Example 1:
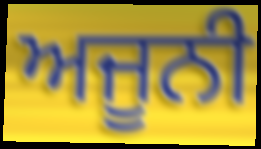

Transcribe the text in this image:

ਅਜੂਨੀ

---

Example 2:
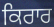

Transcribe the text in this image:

ਕਿਰਾਰ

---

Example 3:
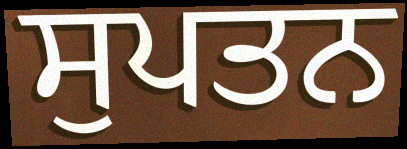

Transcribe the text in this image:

ਸੁਪਤਨ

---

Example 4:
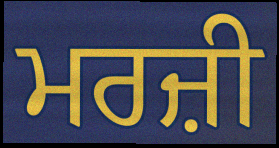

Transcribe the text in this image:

ਮਰਜ਼ੀ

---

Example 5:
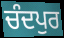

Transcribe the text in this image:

ਚੰਦਪੁਰ